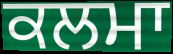
ਕਲਮਾ